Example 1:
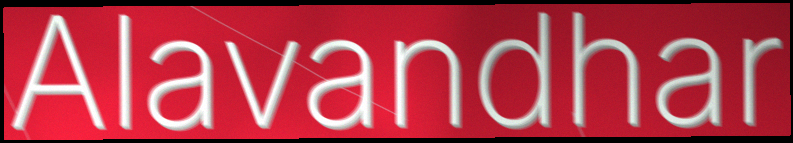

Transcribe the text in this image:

Alavandhar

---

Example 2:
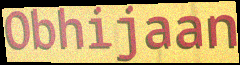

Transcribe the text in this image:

Obhijaan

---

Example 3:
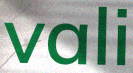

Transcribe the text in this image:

vali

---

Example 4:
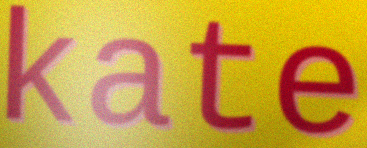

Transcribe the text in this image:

kate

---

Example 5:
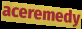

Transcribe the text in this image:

aceremedy